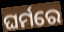
ଘର୍ମରେ